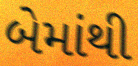
બેમાંથી